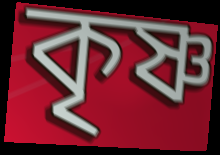
কৃষ্ণ